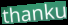
thanku